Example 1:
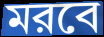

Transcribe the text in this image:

মরবে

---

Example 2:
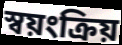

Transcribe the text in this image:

স্বয়ংক্রিয়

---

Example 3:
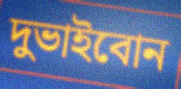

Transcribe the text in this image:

দুভাইবোন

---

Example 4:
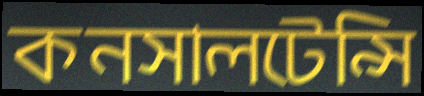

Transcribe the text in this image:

কনসালটেন্সি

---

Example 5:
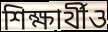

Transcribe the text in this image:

শিক্ষার্থীও